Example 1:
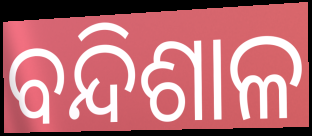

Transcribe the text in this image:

ବନ୍ଦିଶାଳ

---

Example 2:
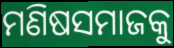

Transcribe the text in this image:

ମଣିଷସମାଜକୁ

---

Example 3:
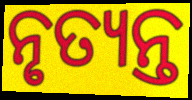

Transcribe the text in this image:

ନୃତ୍ୟନ୍ତ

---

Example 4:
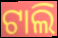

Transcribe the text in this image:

ଟାଲି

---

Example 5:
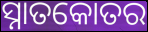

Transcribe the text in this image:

ସ୍ନାତକୋତର